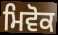
ਮਿਵੋਕ